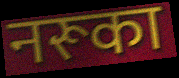
नरूका